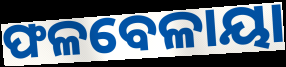
ଫଳବେଳାୟା